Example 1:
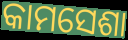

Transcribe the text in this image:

କାମସେଶା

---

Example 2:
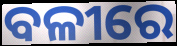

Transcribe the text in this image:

ବଳୀରେ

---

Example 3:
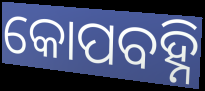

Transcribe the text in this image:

କୋପବହ୍ନି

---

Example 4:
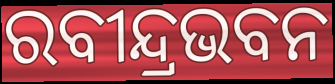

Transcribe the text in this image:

ରବୀନ୍ଦ୍ରଭବନ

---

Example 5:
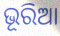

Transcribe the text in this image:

ଭୂରିଆ